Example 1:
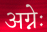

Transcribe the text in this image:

अग्नेः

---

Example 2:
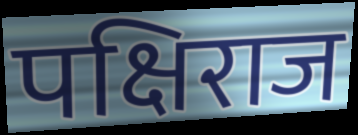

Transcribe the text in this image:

पक्षिराज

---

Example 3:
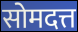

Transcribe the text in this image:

सोमदत्त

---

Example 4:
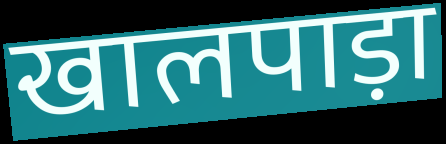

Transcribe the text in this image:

खालपाड़ा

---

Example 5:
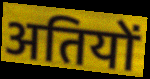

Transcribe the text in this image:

अतियों